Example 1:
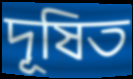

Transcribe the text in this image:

দূষিত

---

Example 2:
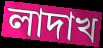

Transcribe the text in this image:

লাদাখ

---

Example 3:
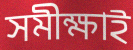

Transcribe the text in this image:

সমীক্ষাই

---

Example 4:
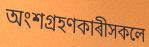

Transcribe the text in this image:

অংশগ্ৰহণকাৰীসকলে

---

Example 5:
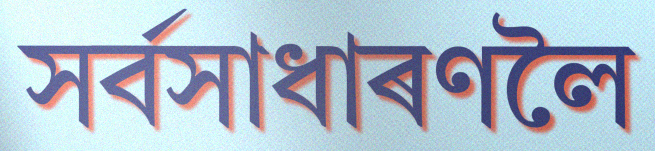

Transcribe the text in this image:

সৰ্বসাধাৰণলৈ